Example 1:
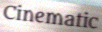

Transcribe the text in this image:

Cinematic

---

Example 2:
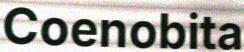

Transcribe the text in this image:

Coenobita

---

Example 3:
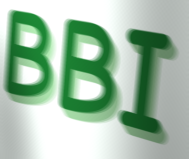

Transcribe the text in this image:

BBI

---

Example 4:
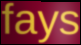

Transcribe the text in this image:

fays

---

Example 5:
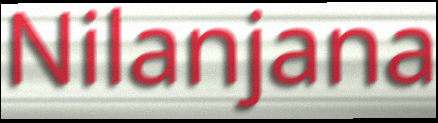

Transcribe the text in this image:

Nilanjana